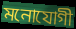
মনোযোগী